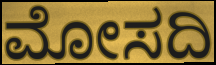
ಮೋಸದಿ